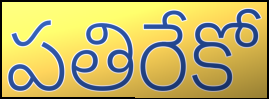
పతిరేకో